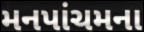
મનપાંચમના